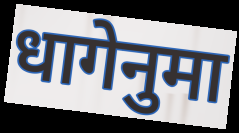
धागेनुमा